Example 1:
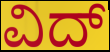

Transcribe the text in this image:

ವಿದ್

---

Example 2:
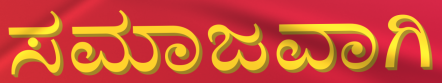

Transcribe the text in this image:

ಸಮಾಜವಾಗಿ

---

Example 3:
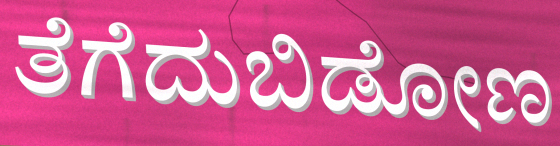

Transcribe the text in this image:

ತೆಗೆದುಬಿಡೋಣ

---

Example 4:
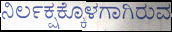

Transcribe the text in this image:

ನಿರ್ಲಕ್ಷಕ್ಕೊಳಗಾಗಿರುವ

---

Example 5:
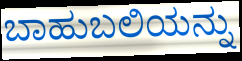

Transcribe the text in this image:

ಬಾಹುಬಲಿಯನ್ನು